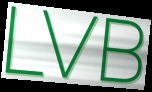
LVB